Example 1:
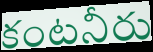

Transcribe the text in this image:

కంటనీరు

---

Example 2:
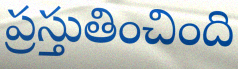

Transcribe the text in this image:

ప్రస్తుతించింది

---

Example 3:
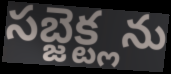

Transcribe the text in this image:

సబ్జెక్ట్లను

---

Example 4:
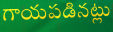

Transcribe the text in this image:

గాయపడినట్లు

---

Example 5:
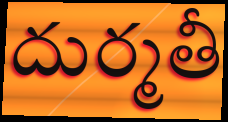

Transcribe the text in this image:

దుర్మతీ